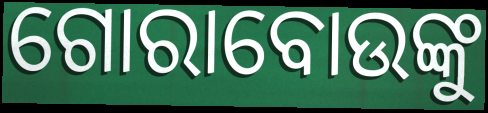
ଗୋରାବୋଉଙ୍କୁ